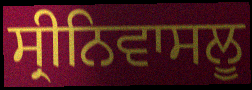
ਸ੍ਰੀਨਿਵਾਸਲੂ